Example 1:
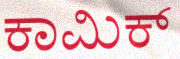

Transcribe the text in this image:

ಕಾಮಿಕ್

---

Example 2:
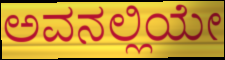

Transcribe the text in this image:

ಅವನಲ್ಲಿಯೇ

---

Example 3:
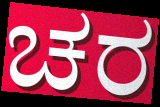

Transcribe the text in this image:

ಚರ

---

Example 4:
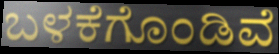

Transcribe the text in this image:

ಬಳಕೆಗೊಂಡಿವೆ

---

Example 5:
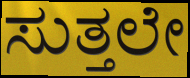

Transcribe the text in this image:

ಸುತ್ತಲೇ